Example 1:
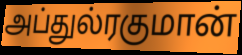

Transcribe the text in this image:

அப்துல்ரகுமான்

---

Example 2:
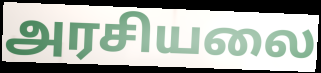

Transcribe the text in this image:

அரசியலை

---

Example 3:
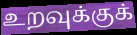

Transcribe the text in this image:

உறவுக்குக்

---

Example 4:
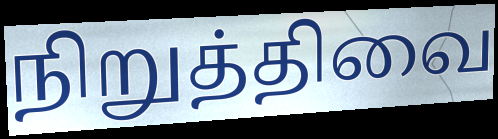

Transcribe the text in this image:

நிறுத்திவை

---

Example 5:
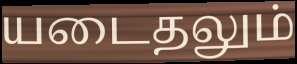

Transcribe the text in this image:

யடைதலும்